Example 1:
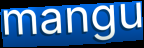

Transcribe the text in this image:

mangu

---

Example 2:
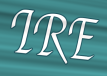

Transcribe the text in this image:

IRE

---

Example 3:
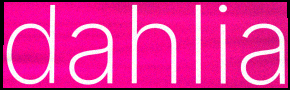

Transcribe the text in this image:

dahlia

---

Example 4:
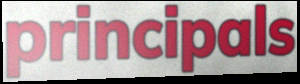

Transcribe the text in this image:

principals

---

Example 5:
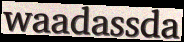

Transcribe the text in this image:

waadassda